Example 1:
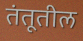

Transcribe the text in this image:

तंतूतील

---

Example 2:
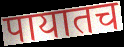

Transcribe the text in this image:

पायातच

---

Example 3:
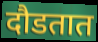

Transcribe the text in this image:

दौडतात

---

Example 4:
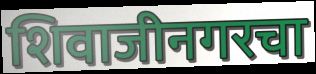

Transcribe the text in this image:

शिवाजीनगरचा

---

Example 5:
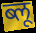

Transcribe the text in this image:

ब्लू